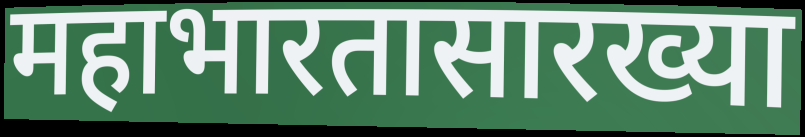
महाभारतासारख्या